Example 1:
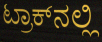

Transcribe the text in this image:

ಟ್ರಾಕ್‌ನಲ್ಲಿ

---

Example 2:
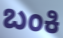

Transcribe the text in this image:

ಬಂಕಿ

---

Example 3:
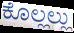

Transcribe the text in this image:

ಕೊಲ್ಲಲ್ಲು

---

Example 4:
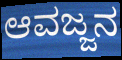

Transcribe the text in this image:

ಆವಜ್ಜನ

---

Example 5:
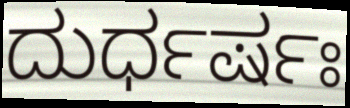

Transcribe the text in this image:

ದುರ್ಧರ್ಷಃ